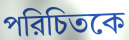
পরিচিতকে